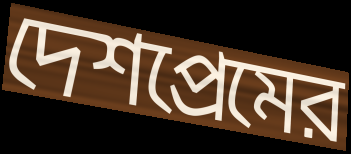
দেশপ্রেমের